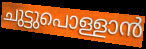
ചുട്ടുപൊള്ളാൻ